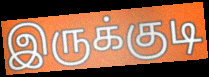
இருக்குடி